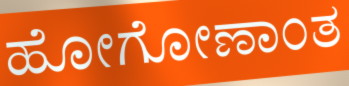
ಹೋಗೋಣಾಂತ